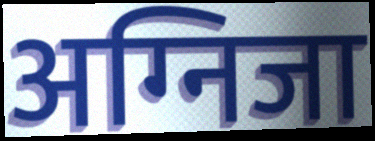
अग्निजा